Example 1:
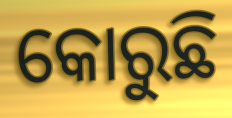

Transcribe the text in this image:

କୋରୁଛି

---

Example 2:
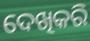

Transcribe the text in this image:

ଦେଖିକରି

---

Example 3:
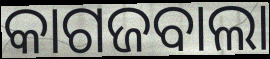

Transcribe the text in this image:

କାଗଜବାଲା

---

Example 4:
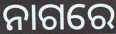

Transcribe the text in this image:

ନାଗରେ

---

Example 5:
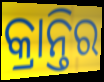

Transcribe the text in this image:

କ୍ରାନ୍ତିର